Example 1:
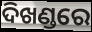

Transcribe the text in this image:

ଦିଖଣ୍ଡରେ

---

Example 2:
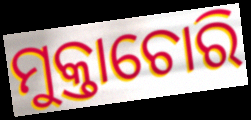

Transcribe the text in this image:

ମୁକ୍ତାଚୋରି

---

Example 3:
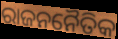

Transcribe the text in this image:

ରାଜନନୈତିକ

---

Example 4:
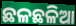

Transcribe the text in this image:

ଛଳଛଳିଆ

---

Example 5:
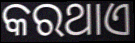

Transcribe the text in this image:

କରଥାଏ